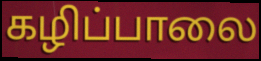
கழிப்பாலை